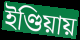
ইণ্ডিয়ায়